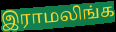
இராமலிங்க